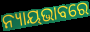
ନ୍ୟାୟଭାବରେ